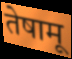
तेषामू